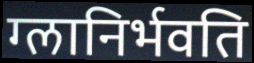
ग्लानिर्भवति